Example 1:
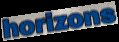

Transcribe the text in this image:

horizons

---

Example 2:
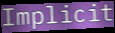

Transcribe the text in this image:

Implicit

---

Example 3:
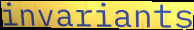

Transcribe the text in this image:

invariants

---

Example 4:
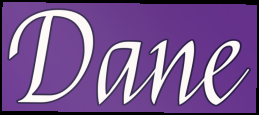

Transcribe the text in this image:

Dane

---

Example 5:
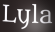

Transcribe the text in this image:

Lyla